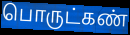
பொருட்கண்